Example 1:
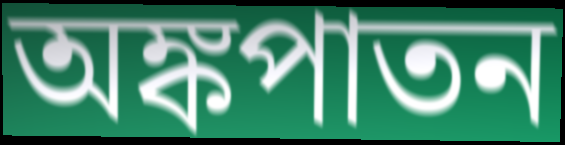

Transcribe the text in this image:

অঙ্কপাতন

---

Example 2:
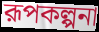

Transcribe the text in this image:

রূপকল্পনা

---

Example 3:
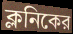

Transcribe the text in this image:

ক্লনিকের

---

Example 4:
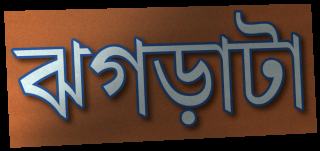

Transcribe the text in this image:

ঝগড়াটা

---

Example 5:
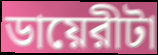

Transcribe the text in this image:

ডায়েরীটা